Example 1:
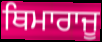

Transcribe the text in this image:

ਥਿਮਾਰਾਜੂ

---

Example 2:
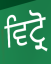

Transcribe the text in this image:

ਵਿਟ੍ਰੋ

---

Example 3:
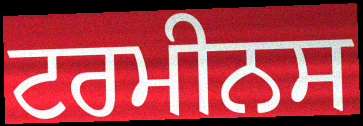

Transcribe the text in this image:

ਟਰਮੀਨਸ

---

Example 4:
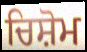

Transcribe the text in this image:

ਚਿਸ਼ੋਮ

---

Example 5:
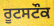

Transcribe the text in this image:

ਰੂਟਸਟੌਕ